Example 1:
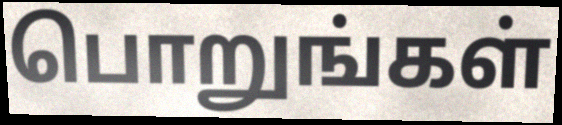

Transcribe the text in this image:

பொறுங்கள்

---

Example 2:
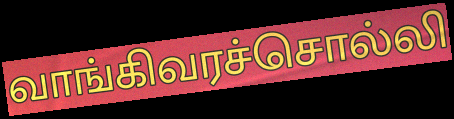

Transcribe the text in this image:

வாங்கிவரச்சொல்லி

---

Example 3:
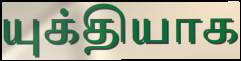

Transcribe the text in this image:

யுக்தியாக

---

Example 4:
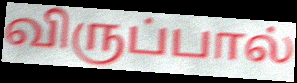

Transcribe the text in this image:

விருப்பால்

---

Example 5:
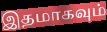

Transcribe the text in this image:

இதமாகவும்